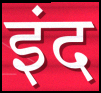
इंद